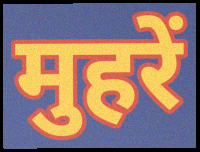
मुहरें